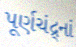
પૂર્ણચંદ્ર્નાં